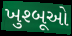
ખુશ્બૂઓ